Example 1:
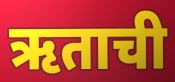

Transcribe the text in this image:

ऋताची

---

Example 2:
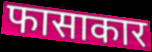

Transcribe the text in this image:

फासाकार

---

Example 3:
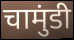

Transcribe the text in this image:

चामुंडी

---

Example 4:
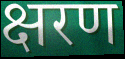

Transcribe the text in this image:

क्षरण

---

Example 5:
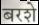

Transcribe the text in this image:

बरशे